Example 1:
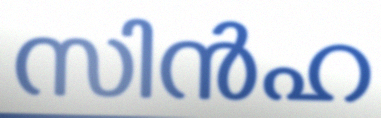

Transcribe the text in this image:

സിൻഹ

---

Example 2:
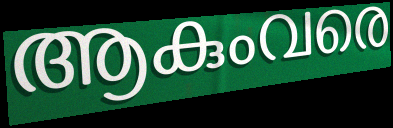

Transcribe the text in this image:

ആകുംവരെ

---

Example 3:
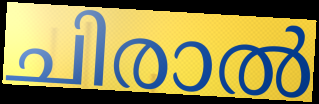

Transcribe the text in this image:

ചിരാൽ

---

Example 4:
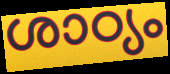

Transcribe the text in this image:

ശാഠ്യം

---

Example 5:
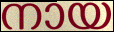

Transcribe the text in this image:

നായ